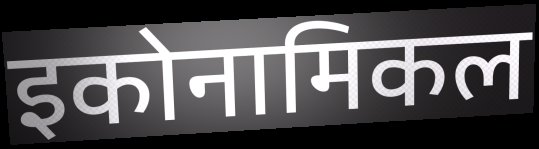
इकोनामिकल